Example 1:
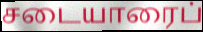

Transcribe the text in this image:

சடையாரைப்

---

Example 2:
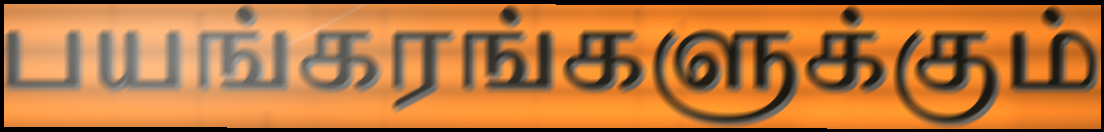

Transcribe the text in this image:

பயங்கரங்களுக்கும்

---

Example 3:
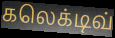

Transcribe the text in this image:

கலெக்டிவ்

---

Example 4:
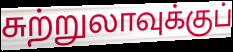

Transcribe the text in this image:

சுற்றுலாவுக்குப்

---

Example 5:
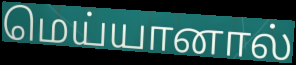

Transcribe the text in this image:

மெய்யானால்